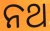
ନଥ